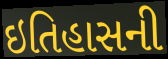
ઇતિહાસની